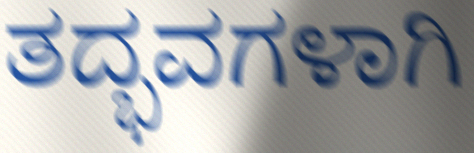
ತದ್ಭವಗಳಾಗಿ